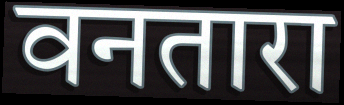
वनतारा